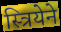
स्त्रियेने